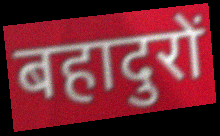
बहादुरों